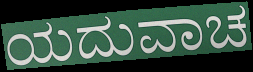
ಯದುವಾಚ